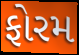
ફોરમ